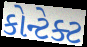
કોન્ટેક્ટ